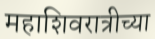
महाशिवरात्रीच्या